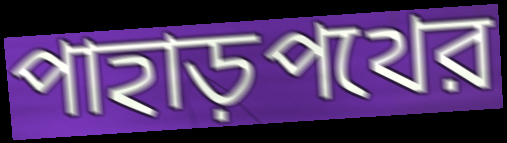
পাহাড়পথের